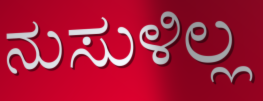
ನುಸುಳಿಲ್ಲ